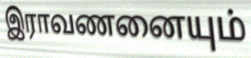
இராவணனையும்